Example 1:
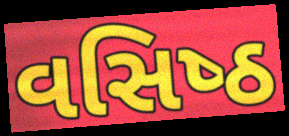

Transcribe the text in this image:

વસિષ્‍ઠ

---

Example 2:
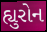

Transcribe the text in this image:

હ્યુરોન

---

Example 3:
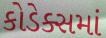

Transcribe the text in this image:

કોડેક્સમાં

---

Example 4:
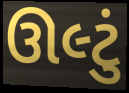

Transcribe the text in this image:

ઊલ્ટું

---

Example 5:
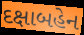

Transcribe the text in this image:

દક્ષાબહેન